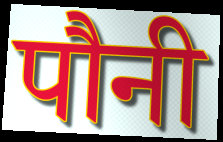
पौनी